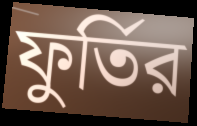
ফুর্তির